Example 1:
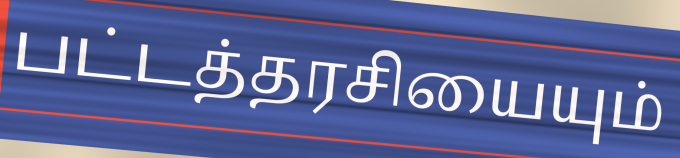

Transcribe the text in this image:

பட்டத்தரசியையும்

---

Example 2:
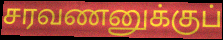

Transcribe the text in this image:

சரவணனுக்குப்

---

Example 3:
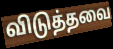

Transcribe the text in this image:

விடுத்தவை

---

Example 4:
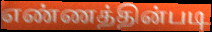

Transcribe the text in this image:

எண்ணத்தின்படி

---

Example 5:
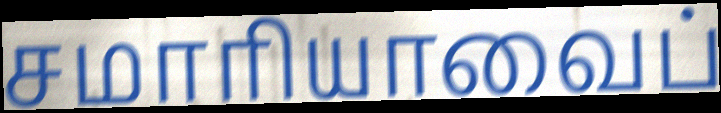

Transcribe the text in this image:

சமாரியாவைப்